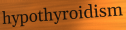
hypothyroidism